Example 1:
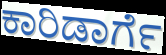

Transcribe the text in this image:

ಕಾರಿಡಾರ್ಗೆ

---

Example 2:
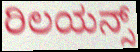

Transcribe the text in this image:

ರಿಲಯನ್ಸ್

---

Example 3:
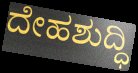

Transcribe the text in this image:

ದೇಹಶುದ್ಧಿ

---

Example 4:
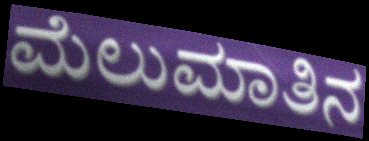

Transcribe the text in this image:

ಮೆಲುಮಾತಿನ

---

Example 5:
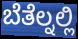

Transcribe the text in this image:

ಬೆತೆಲ್ನಲ್ಲಿ